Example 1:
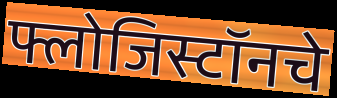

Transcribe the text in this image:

फ्लोजिस्टॉनचे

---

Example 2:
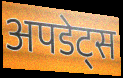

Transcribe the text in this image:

अपडेट्स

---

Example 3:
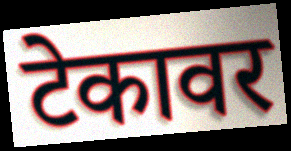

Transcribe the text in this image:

टेकावर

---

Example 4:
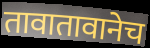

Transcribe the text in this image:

तावातावानेच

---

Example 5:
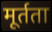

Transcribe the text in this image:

मूर्तता